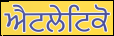
ਐਟਲੇਟਿਕੋ